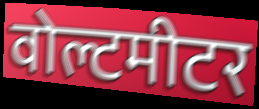
वोल्टमीटर